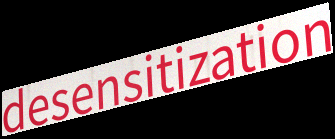
desensitization